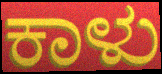
ಕಾಳು